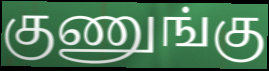
குணுங்கு